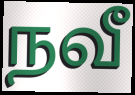
நவீ